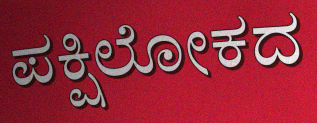
ಪಕ್ಷಿಲೋಕದ